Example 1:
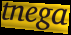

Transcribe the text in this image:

tnega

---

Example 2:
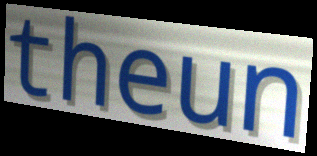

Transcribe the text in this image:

theun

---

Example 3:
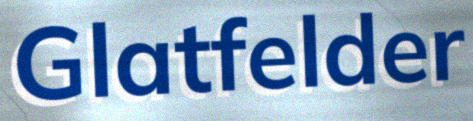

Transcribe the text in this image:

Glatfelder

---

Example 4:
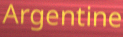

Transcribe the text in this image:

Argentine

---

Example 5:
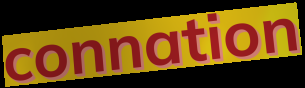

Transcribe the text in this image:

connation